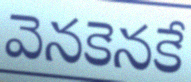
వెనకెనకే